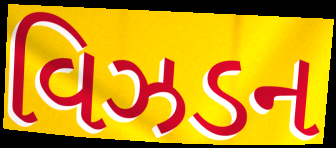
વિઝડન